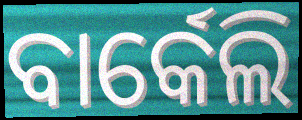
ବାର୍କେଲି